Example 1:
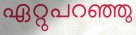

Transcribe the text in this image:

ഏറ്റുപറഞ്ഞു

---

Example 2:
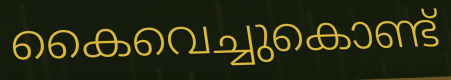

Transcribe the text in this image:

കൈവെച്ചുകൊണ്ട്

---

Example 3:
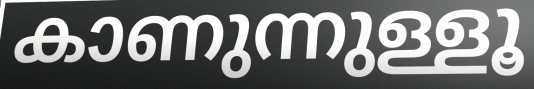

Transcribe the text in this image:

കാണുന്നുള്ളൂ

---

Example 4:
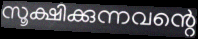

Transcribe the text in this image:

സൂക്ഷിക്കുന്നവന്റെ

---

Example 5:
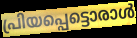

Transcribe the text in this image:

പ്രിയപ്പെട്ടൊരാൾ